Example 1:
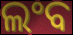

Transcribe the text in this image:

ଲଂବ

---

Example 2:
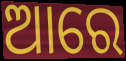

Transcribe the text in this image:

ଆରେ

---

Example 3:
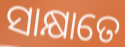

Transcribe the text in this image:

ସାକ୍ଷାତେ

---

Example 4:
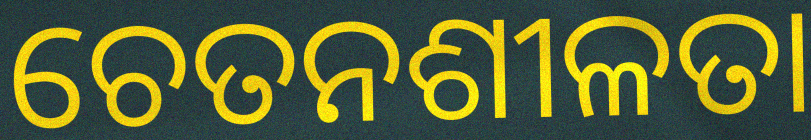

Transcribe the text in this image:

ଚେତନଶୀଳତା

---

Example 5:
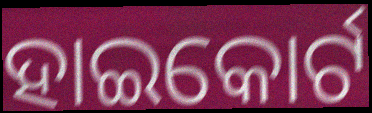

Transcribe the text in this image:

ହାଇକୋର୍ଟ